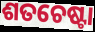
ଶତଚେଷ୍ଟା